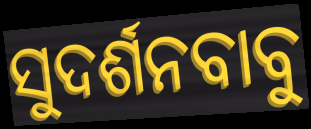
ସୁଦର୍ଶନବାବୁ